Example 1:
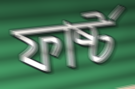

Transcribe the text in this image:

ফাৰ্ষ্ট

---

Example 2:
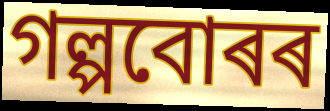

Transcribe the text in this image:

গল্পবোৰৰ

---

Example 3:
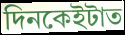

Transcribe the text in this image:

দিনকেইটাত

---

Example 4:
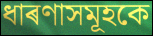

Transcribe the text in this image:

ধাৰণাসমূহকে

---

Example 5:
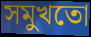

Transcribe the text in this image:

সমুখতো